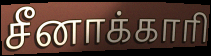
சீனாக்காரி